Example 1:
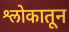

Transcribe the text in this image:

श्लोकातून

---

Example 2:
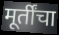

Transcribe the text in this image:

मूर्तींचा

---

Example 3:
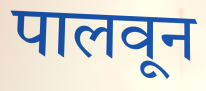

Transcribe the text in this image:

पालवून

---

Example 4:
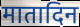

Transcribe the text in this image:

मातादिन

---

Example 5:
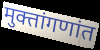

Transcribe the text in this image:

मुक्तांगणांत